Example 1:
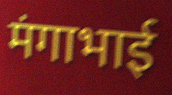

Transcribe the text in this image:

मंगाभाई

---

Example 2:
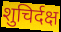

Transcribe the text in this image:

शुचिर्दक्ष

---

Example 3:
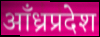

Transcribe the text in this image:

आँध्रप्रदेश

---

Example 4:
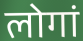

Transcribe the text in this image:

लोगां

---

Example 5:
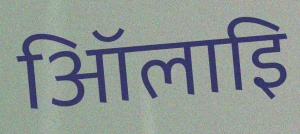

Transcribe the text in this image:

ऑिलाइि